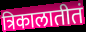
त्रिकालातीतं